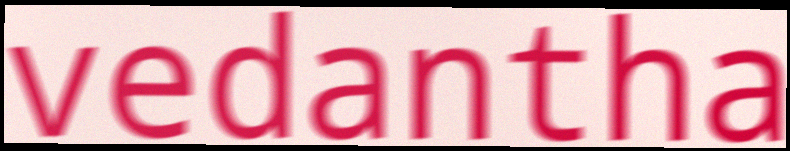
vedantha